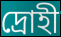
দ্রোহী